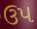
ઉપ